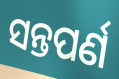
ସନ୍ତପର୍ଣ